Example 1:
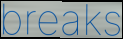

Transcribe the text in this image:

breaks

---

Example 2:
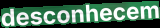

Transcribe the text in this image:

desconhecem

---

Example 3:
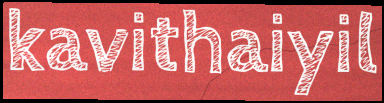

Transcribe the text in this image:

kavithaiyil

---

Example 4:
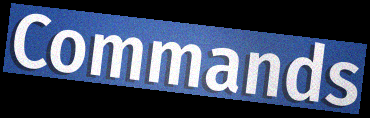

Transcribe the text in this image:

Commands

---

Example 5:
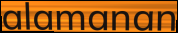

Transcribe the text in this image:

alamanan